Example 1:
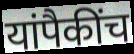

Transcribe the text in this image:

यांपैकींच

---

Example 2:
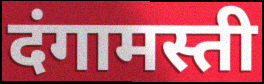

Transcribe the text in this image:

दंगामस्ती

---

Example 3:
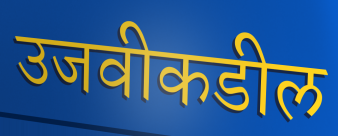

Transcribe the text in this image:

उजवीकडील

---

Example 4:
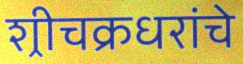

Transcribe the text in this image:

श्रीचक्रधरांचे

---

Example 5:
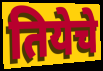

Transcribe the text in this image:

तियेचे